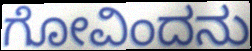
ಗೋವಿಂದನು